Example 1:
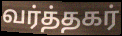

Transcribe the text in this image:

வர்த்தகர்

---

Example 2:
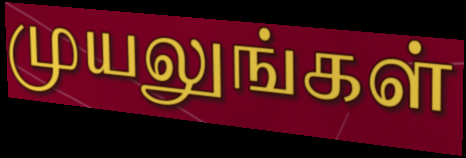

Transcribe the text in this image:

முயலுங்கள்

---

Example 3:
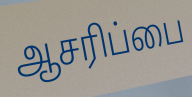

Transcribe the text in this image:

ஆசரிப்பை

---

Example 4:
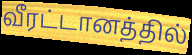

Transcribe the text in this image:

வீரட்டானத்தில்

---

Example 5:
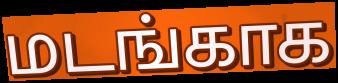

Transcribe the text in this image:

மடங்காக